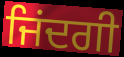
ਜਿਂਦਗੀ